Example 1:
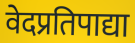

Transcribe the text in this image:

वेदप्रतिपाद्या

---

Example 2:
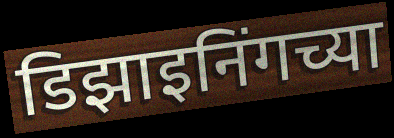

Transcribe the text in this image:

डिझाइनिंगच्या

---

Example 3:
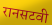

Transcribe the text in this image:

रानसटवी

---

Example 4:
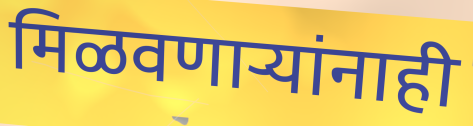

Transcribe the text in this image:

मिळवणाऱ्यांनाही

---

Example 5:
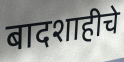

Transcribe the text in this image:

बादशाहीचे